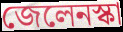
জেলেনস্কা